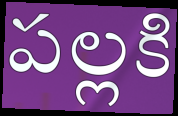
పల్లకి